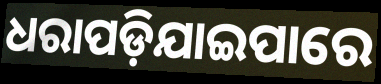
ଧରାପଡ଼ିଯାଇପାରେ